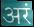
अरं